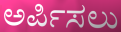
ಅರ್ಪಿಸಲು